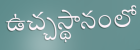
ఉచ్చస్థానంలో